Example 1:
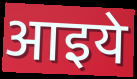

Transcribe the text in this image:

आइये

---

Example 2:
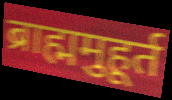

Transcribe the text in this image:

ब्राह्ममुहूर्त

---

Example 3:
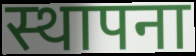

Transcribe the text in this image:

स्थापना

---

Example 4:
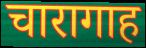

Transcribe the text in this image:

चारागाह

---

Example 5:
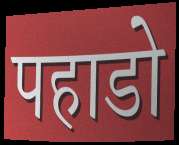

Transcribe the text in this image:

पहाडो